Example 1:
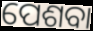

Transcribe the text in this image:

ପେଶବା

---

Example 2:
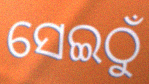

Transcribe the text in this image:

ସେଇଠୁଁ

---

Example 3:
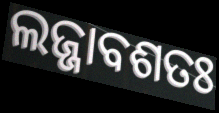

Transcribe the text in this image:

ଲଜ୍ଜାବଶତଃ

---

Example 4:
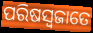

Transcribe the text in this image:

ପରିଷସ୍ଵଜାତେ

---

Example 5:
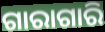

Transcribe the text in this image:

ଗାରାଗାରି